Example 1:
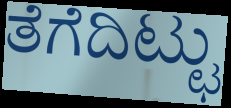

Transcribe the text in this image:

ತೆಗೆದಿಟ್ಟು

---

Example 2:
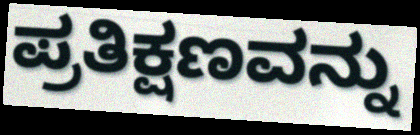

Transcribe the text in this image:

ಪ್ರತಿಕ್ಷಣವನ್ನು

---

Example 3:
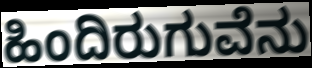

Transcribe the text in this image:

ಹಿಂದಿರುಗುವೆನು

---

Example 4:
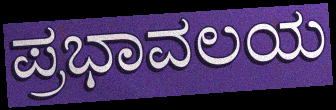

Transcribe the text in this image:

ಪ್ರಭಾವಲಯ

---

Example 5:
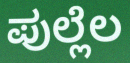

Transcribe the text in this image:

ಪುಲ್ಲೆಲ